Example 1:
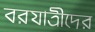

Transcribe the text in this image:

বরযাত্রীদের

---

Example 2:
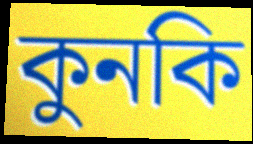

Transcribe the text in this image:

কুনকি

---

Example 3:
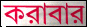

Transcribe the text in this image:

করাবার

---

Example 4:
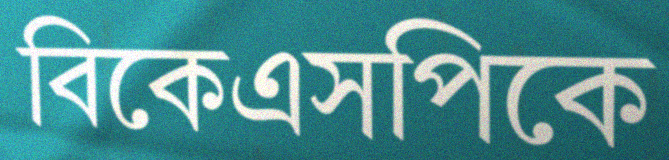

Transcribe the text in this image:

বিকেএসপিকে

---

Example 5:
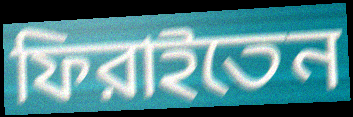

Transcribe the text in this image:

ফিরাইতেন